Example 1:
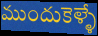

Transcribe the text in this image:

ముందుకెళ్ళే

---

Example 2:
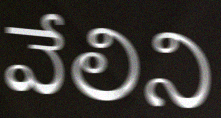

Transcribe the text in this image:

వేలిని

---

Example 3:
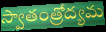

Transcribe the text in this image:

స్వాతంత్రోద్యమ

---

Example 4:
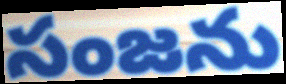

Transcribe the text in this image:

సంజను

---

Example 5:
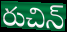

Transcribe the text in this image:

రుచిన్